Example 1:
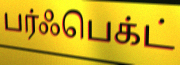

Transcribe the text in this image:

பர்ஃபெக்ட்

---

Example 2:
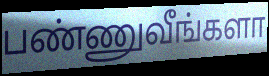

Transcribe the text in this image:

பண்ணுவீங்களா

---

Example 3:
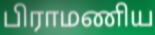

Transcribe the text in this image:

பிராமணிய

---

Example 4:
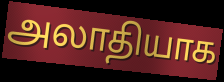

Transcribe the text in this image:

அலாதியாக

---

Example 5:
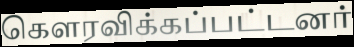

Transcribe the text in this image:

கௌரவிக்கப்பட்டனர்